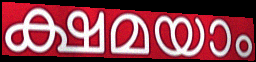
ക്ഷമയാം